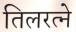
तिलरत्ने